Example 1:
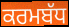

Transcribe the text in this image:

ਕਰਮਬੱਧ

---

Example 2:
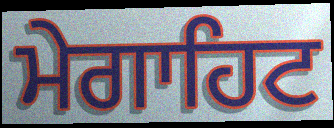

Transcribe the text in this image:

ਮੇਗਾਹਿਟ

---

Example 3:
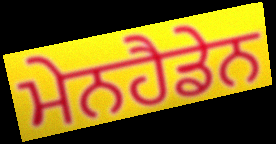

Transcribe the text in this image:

ਮੇਨਹੈਡੇਨ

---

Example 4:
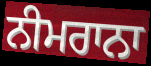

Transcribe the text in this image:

ਨੀਮਰਾਨਾ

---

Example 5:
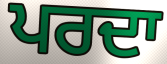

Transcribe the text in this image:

ਪਰਦਾ